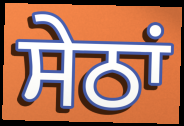
ਸੇਠਾਂ